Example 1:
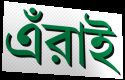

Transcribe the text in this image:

এঁরাই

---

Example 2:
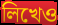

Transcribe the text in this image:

লিখেও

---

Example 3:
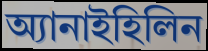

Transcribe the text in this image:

অ্যানাইহিলিন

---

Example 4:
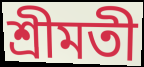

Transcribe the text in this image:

শ্রীমতী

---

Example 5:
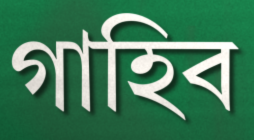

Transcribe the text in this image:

গাহিব